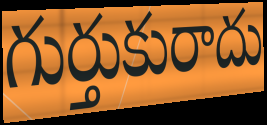
గుర్తుకురాదు